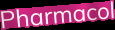
Pharmacol